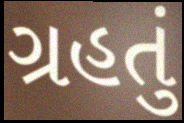
ગ્રહતું